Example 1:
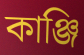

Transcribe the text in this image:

কাঞ্জি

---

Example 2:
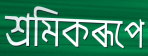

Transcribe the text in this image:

শ্ৰমিকৰূপে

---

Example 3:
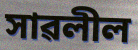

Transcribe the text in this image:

সাৱলীল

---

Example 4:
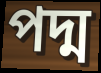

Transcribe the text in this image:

পদ্ম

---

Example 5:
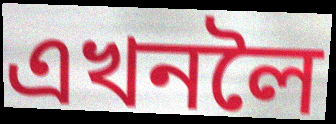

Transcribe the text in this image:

এখনলৈ